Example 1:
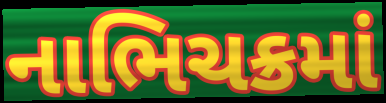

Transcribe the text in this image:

નાભિચક્રમાં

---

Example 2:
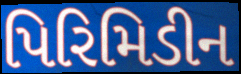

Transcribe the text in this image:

પિરિમિડીન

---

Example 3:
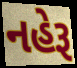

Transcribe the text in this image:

નહેરૂ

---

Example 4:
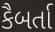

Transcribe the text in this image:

કૈબર્તા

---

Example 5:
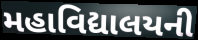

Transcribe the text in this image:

મહાવિદ્યાલયની